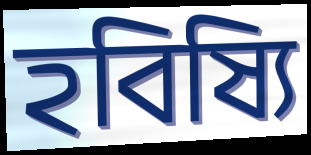
হবিষ্যি